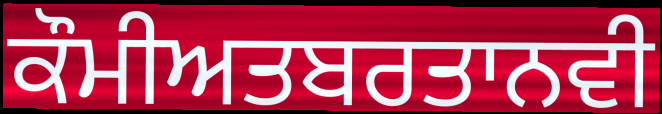
ਕੌਮੀਅਤਬਰਤਾਨਵੀ